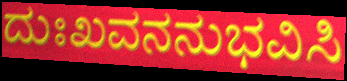
ದುಃಖವನನುಭವಿಸಿ